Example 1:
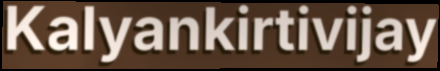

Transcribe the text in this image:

Kalyankirtivijay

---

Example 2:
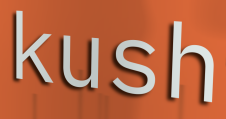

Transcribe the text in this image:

kush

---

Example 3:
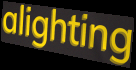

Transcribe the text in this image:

alighting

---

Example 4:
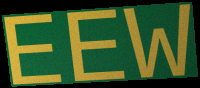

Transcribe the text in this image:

EEW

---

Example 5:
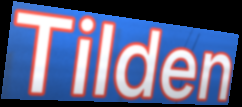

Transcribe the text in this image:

Tilden